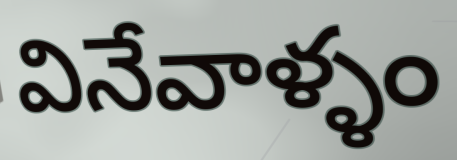
వినేవాళ్ళం